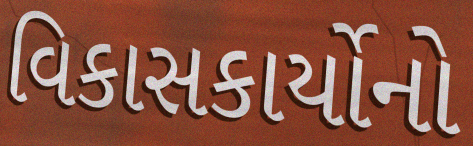
વિકાસકાર્યોનો